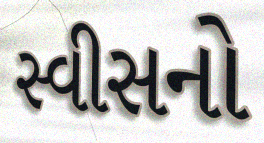
સ્વીસનો